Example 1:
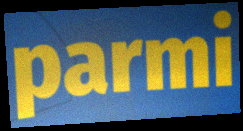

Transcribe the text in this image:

parmi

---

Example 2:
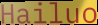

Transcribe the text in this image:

Hailuo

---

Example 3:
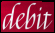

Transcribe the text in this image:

debit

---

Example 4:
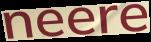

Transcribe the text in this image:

neere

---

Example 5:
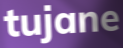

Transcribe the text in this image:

tujane